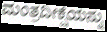
ಮಂತ್ರದೀಕ್ಷೆಯನ್ನು